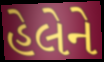
હેલેને